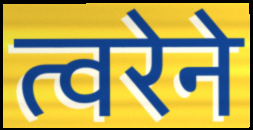
त्वरेने